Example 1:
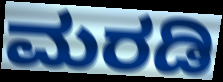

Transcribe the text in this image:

ಮರಡಿ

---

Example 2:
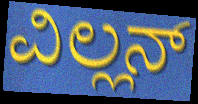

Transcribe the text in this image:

ವಿಲ್ಲನ್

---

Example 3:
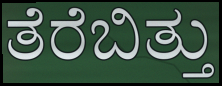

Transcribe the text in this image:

ತೆರೆಬಿತ್ತು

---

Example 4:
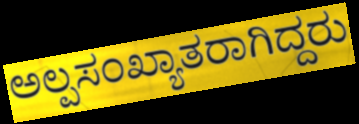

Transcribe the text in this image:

ಅಲ್ಪಸಂಖ್ಯಾತರಾಗಿದ್ದರು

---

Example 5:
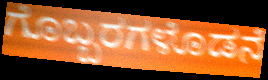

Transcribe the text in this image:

ಗೊಬ್ಬರಗಳೊಡನೆ